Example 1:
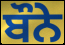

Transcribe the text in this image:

ਬੌਨੇ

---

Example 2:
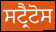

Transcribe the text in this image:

ਸਟ੍ਰੈਟੋਸ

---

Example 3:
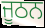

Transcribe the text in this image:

ਜੂਠਨ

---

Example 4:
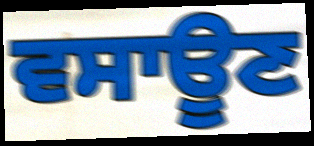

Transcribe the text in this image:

ਵਸਾਊਣ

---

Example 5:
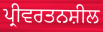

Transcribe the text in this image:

ਪ੍ਰੀਵਰਤਨਸ਼ੀਲ